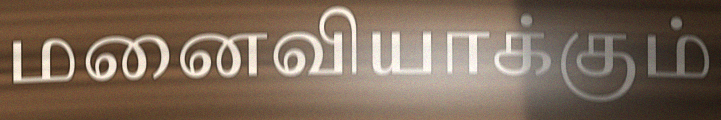
மனைவியாக்கும்